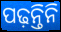
ପଢ଼ନ୍ତିନି